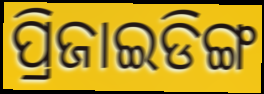
ପ୍ରିଜାଇଡିଙ୍ଗ